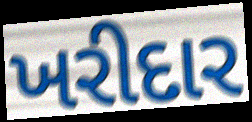
ખરીદાર